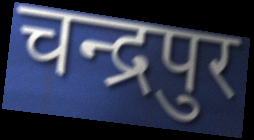
चन्द्रपुर